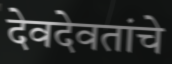
देवदेवतांचे